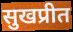
सुखप्रीत